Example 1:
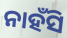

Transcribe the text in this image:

ନାହଁସି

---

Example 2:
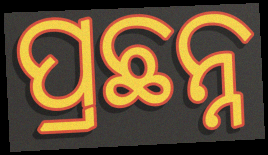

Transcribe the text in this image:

ପ୍ରଛନ୍ନ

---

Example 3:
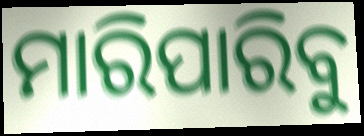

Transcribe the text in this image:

ମାରିପାରିବୁ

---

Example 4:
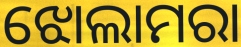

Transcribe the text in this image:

ଝୋଲାମରା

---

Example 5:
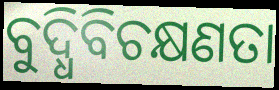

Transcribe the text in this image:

ବୁଦ୍ଧିବିଚକ୍ଷଣତା